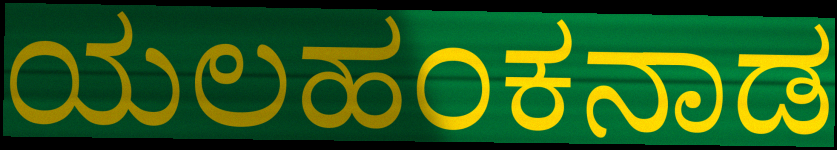
ಯಲಹಂಕನಾಡ